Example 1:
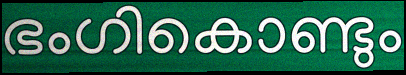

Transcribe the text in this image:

ഭംഗികൊണ്ടും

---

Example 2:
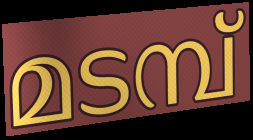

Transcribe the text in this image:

മടമ്പ്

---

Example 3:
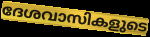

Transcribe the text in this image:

ദേശവാസികളുടെ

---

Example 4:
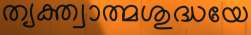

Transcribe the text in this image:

ത്യക്ത്വാത്മശുദ്ധയേ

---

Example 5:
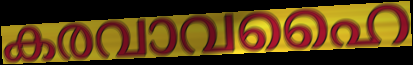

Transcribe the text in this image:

കരവാവഹൈ